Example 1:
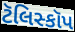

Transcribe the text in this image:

ટૅલિસ્કૉપ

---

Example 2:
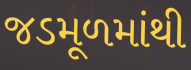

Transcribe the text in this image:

જડમૂળમાંથી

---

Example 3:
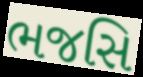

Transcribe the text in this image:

ભજસિ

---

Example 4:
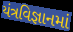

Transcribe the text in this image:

યંત્રવિજ્ઞાનમાં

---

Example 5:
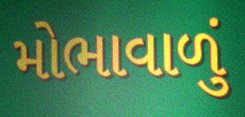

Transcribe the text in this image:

મોભાવાળું